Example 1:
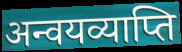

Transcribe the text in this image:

अन्वयव्याप्ति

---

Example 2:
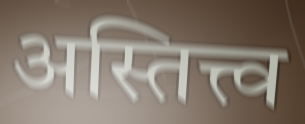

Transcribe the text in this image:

अस्तित्त्व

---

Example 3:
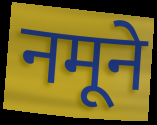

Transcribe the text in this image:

नमूने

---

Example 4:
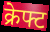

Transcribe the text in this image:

क्रेफ्ट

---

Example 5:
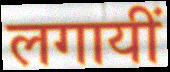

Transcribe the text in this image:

लगायीं